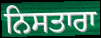
ਨਿਸਤਾਰਾ